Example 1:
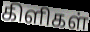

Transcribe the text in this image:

கிளிகள்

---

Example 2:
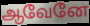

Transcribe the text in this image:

ஆவேனே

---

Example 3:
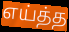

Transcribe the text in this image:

எய்த்த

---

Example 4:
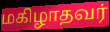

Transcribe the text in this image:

மகிழாதவர்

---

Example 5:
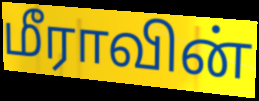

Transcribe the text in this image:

மீராவின்